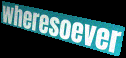
wheresoever